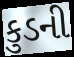
કુડની